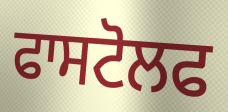
ਫਾਸਟੋਲਫ